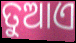
ତୁଆଏ